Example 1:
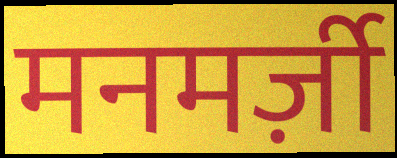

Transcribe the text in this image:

मनमर्ज़ी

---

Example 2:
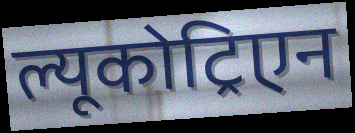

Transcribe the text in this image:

ल्यूकोट्रिएन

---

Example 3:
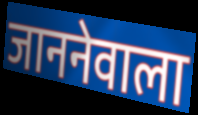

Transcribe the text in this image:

जाननेवाला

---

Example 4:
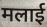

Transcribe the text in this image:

मलाई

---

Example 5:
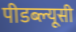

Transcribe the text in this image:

पीडब्ल्यूसी